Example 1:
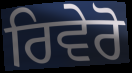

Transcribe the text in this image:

ਰਿਵੇਰੋ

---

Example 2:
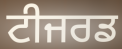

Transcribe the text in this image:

ਟੀਜਰਡ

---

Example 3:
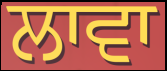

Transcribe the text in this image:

ਲਾਵਾ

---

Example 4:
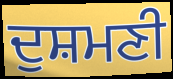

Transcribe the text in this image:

ਦੁਸ਼ਮਣੀ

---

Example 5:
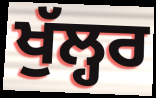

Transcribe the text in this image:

ਖੁੱਲ੍ਹਰ